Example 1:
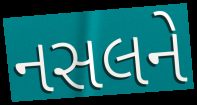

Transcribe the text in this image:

નસલને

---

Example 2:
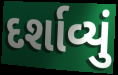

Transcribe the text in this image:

દર્શાવ્યું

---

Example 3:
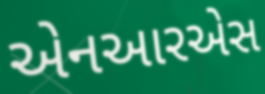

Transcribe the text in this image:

એનઆરએસ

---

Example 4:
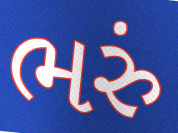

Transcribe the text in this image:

ભરું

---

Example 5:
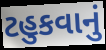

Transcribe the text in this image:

ટહુકવાનું